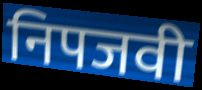
निपजवी